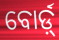
ବୋର୍ଡ଼୍